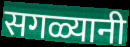
सगळ्यानी